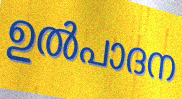
ഉൽപാദന